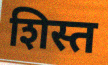
शिस्त